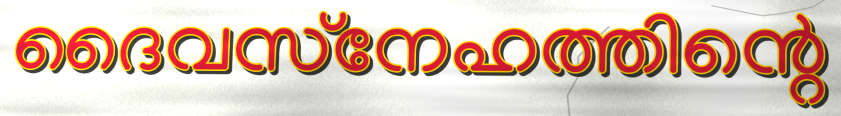
ദൈവസ്‌നേഹത്തിന്റെ